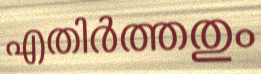
എതിർത്തതും